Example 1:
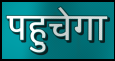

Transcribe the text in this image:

पहुचेगा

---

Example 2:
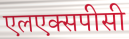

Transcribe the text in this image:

एलएक्सपीसी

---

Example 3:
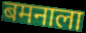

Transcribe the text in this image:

बमनाला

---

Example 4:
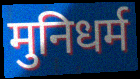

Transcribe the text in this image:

मुनिधर्म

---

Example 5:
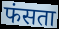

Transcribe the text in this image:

फंसता